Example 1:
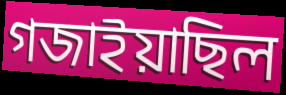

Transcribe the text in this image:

গজাইয়াছিল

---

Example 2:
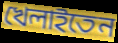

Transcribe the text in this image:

খেলাইতেন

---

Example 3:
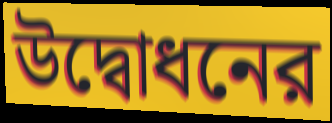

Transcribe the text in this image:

উদ্বোধনের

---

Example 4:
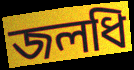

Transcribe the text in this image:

জলধি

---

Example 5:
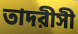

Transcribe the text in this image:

তাদরীসী